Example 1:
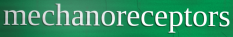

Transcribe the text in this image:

mechanoreceptors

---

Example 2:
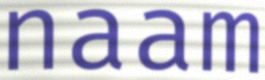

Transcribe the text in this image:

naam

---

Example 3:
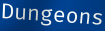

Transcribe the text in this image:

Dungeons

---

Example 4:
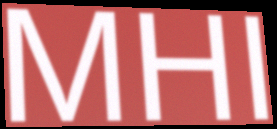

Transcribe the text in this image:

MHI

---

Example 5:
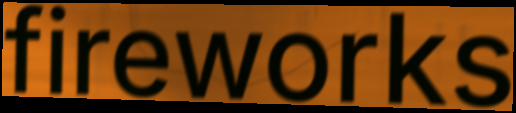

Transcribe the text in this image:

fireworks